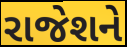
રાજેશને